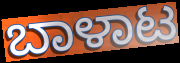
ಬಾಳಾಟ